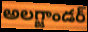
అలగ్జాండర్